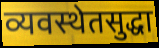
व्यवस्थेतसुद्धा